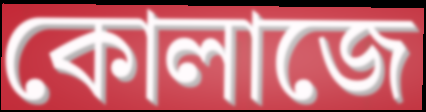
কোলাজে